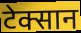
टेक्सान